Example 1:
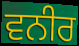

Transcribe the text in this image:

ਵਨੀਰ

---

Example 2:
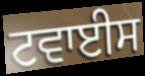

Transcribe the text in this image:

ਟਵਾਈਸ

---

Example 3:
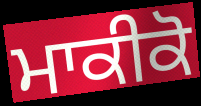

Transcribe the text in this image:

ਮਾਕੀਕੋ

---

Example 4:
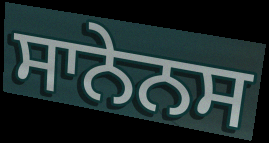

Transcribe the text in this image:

ਸਾਨੇਨਸ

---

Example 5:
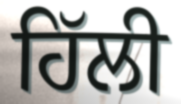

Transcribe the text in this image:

ਹਿੱਲੀ